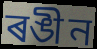
ৰঙীন